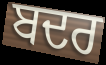
ਬਦਰ